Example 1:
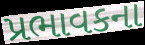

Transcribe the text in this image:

પ્રભાવકના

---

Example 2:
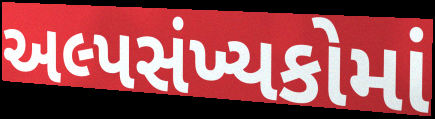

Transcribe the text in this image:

અલ્પસંખ્યકોમાં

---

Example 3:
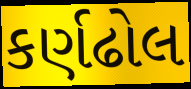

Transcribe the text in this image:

કર્ણઢોલ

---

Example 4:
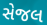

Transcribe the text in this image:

સેજલ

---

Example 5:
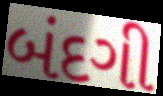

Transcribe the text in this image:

બંદગી